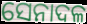
ସେନାଦଳ